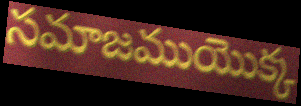
సమాజముయొక్క